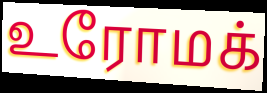
உரோமக்